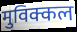
मुविक्कल